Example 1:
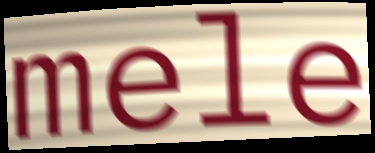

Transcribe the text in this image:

mele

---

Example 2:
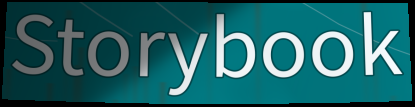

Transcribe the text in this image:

Storybook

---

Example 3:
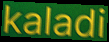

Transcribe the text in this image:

kaladi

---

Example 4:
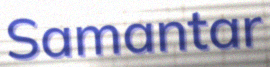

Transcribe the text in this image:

Samantar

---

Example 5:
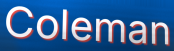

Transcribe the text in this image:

Coleman